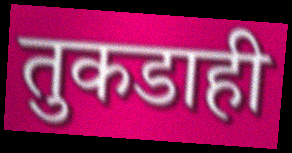
तुकडाही